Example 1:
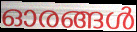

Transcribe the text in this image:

ഓരങ്ങൾ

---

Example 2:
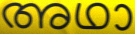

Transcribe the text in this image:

അഥാ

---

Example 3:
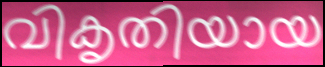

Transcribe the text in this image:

വികൃതിയായ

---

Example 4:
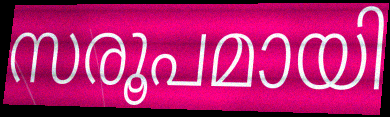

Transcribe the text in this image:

സരൂപമായി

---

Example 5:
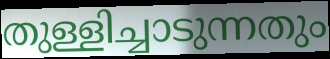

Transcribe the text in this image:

തുള്ളിച്ചാടുന്നതും